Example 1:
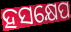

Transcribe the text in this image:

ହସକ୍ଷେପ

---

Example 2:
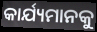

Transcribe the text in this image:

କାର୍ଯ୍ୟମାନକୁ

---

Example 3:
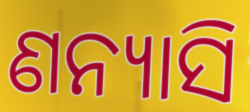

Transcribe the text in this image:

ଣନ୍ୟାସି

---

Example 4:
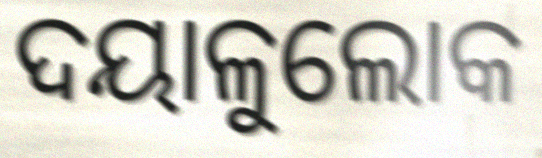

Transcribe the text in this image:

ଦୟାଳୁଲୋକ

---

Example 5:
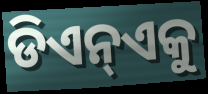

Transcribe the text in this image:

ଡିଏନ୍ଏକୁ